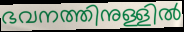
ഭവനത്തിനുള്ളിൽ